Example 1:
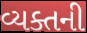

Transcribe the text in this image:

વ્યક્તની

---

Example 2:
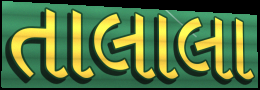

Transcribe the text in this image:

તાલાલા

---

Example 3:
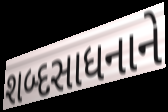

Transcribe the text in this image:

શબ્દસાધનાને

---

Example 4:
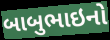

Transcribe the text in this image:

બાબુભાઇનો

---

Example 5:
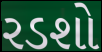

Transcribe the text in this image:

રડશો